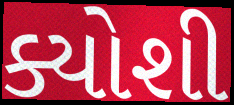
ક્યોશી